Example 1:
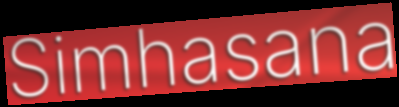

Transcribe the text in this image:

Simhasana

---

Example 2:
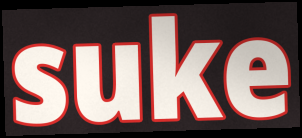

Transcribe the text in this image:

suke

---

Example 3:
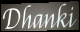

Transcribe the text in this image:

Dhanki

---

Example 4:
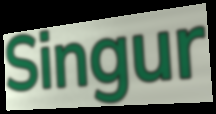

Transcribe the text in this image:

Singur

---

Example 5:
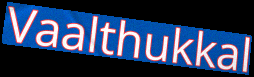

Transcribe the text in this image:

Vaalthukkal